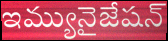
ఇమ్యునైజేషన్